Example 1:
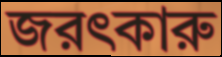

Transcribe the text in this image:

জরৎকারু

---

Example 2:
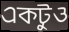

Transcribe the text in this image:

একটুও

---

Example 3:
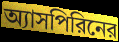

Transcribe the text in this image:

অ্যাসপিরিনের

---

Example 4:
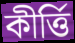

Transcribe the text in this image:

কীর্ত্তি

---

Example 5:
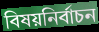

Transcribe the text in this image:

বিষয়নির্বাচন